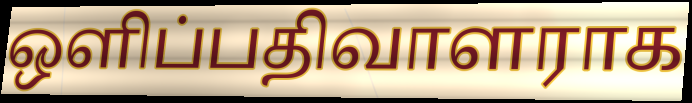
ஒளிப்பதிவாளராக